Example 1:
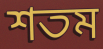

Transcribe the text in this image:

শতম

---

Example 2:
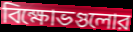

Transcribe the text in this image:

বিক্ষোভগুলোর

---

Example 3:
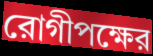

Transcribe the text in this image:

রোগীপক্ষের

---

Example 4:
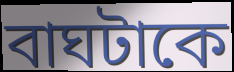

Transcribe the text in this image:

বাঘটাকে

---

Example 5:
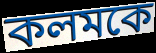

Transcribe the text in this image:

কলমকে